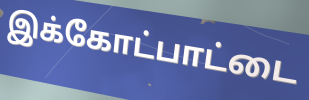
இக்கோட்பாட்டை